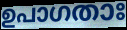
ഉപാഗതാഃ